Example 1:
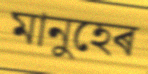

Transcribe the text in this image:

মানুহেৰ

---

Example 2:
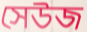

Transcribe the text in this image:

সেউজ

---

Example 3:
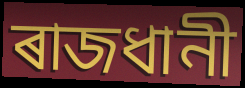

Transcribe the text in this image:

ৰাজধানী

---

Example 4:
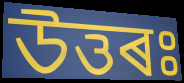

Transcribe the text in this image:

উত্তৰঃ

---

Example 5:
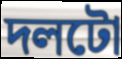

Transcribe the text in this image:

দলটো